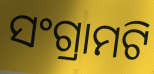
ସଂଗ୍ରାମଟି